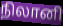
நிலானி